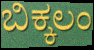
ಬಿಕ್ಕಲಂ